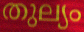
തുല്യം